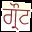
ਗ੍ਰੌਟ